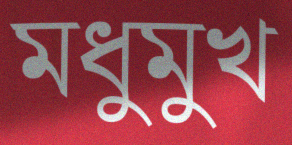
মধুমুখ